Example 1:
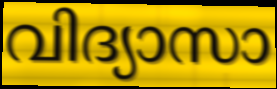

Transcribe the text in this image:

വിദ്യാസാ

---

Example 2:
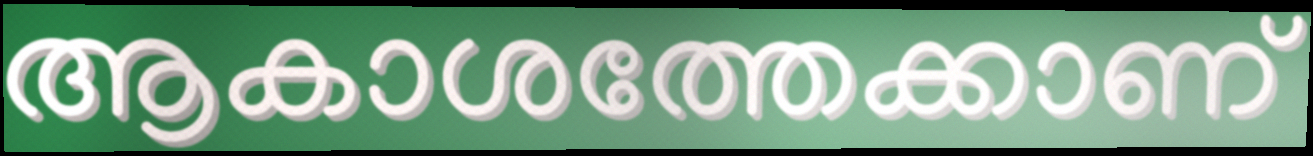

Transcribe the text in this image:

ആകാശത്തേക്കാണ്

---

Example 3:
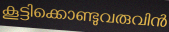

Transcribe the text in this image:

കൂട്ടിക്കൊണ്ടുവരുവിൻ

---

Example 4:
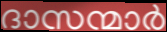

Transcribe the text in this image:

ദാസന്മാർ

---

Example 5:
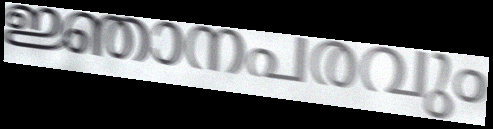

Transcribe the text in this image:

ജ്ഞാനപരവും